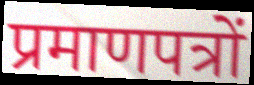
प्रमाणपत्रों